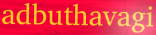
adbuthavagi